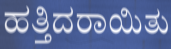
ಹತ್ತಿದರಾಯಿತು